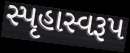
સ્પૃહાસ્વરૂપ